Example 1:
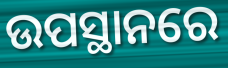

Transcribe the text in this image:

ଉପସ୍ଥାନରେ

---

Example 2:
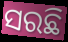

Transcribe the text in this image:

ସରଛି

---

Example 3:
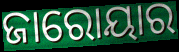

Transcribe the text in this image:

ଜାରୋୟାର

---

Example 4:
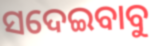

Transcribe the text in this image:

ସଦେଇବାବୁ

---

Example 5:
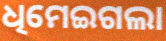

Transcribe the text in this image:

ଧିମେଇଗଲା